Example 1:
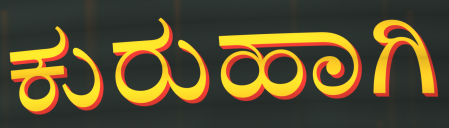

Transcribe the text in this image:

ಕುರುಹಾಗಿ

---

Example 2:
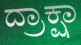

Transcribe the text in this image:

ದ್ರಾಕ್ಷಾ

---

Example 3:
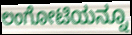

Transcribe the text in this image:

ಲಂಗೋಟಿಯನ್ನೂ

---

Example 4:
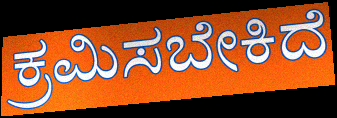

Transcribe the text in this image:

ಕ್ರಮಿಸಬೇಕಿದೆ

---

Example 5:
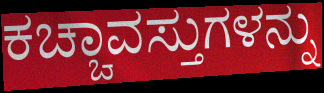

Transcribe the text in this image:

ಕಚ್ಚಾವಸ್ತುಗಳನ್ನು